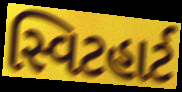
સ્વિટહાર્ટ